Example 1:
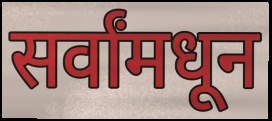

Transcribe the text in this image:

सर्वांमधून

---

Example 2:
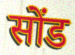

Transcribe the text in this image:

सोंड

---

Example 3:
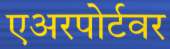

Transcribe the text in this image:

एअरपोर्टवर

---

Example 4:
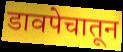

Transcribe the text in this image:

डावपेचातून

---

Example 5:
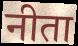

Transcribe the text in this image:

नीता